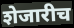
शेजारीच